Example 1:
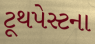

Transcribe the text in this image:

ટૂથપેસ્ટના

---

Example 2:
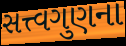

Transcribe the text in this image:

સત્ત્વગુણના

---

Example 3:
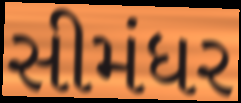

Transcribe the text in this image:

સીમંધર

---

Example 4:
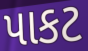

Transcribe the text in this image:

પાકટ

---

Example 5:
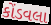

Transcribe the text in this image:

કોંડવલા